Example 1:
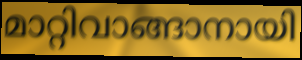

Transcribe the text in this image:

മാറ്റിവാങ്ങാനായി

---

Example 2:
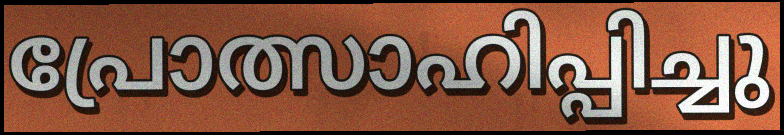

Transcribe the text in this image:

പ്രോത്സാഹിപ്പിച്ചു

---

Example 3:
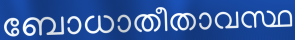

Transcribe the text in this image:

ബോധാതീതാവസ്ഥ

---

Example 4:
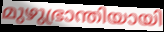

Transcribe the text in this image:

മുഴുഭ്രാന്തിയായി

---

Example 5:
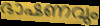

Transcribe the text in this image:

ഭാഷണവും